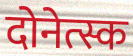
दोनेत्स्क